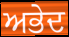
ਅਭੇਦ